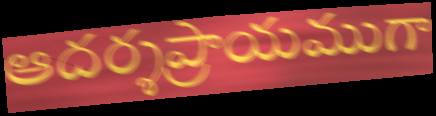
ఆదర్శప్రాయముగా